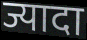
ज्यादा